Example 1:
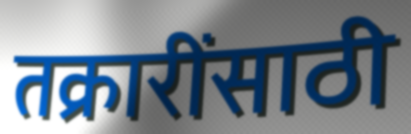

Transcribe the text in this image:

तक्रारींसाठी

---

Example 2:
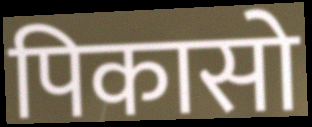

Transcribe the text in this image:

पिकासो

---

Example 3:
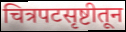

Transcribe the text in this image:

चित्रपटसृष्टीतून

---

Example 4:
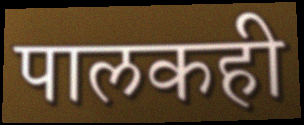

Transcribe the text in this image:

पालकही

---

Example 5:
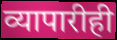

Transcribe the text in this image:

व्यापारीही